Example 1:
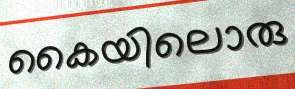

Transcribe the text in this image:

കൈയിലൊരു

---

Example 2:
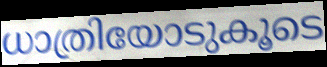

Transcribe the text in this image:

ധാത്രിയോടുകൂടെ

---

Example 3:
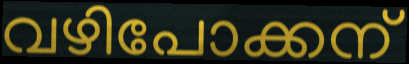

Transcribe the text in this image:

വഴിപോക്കന്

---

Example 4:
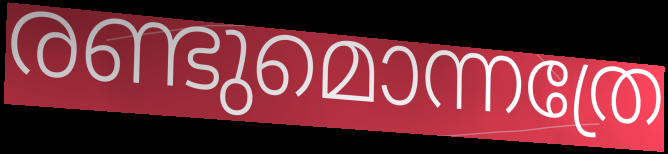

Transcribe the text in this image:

രണ്ടുമൊന്നത്രേ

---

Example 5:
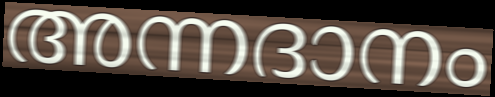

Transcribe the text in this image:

അന്നദാനം